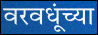
वरवधूंच्या